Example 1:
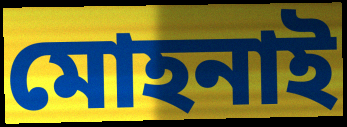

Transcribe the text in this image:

মোহনাই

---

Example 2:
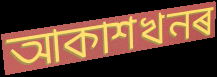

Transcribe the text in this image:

আকাশখনৰ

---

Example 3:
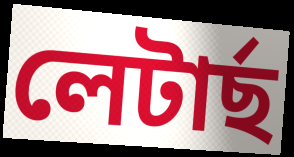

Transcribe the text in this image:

লেটাৰ্ছ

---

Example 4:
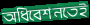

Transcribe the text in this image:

অধিবেশনতেই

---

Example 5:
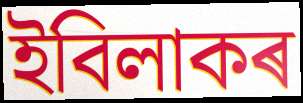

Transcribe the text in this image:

ইবিলাকৰ